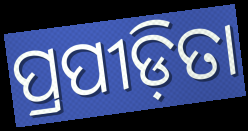
ପ୍ରପୀଡ଼ିତା